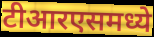
टीआरएसमध्ये